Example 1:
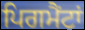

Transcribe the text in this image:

ਪਿਗਮੈਂਟਾਂ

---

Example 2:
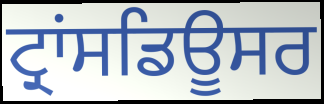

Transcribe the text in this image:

ਟ੍ਰਾਂਸਡਿਊਸਰ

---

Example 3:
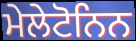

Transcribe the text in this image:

ਮੇਲੇਟੋਨਿਨ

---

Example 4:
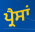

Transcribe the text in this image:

ਪ੍ਰੈਸਾਂ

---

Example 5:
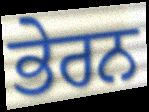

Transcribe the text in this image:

ਭੇਰਨ